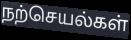
நற்செயல்கள்